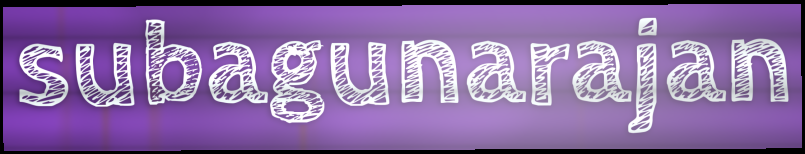
subagunarajan